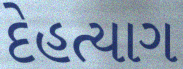
દેહત્યાગ